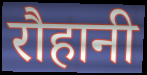
रौहानी